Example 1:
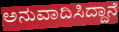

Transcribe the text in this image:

ಅನುವಾದಿಸಿದ್ದಾನೆ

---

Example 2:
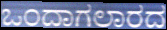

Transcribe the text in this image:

ಒಂದಾಗಲಾರದ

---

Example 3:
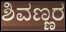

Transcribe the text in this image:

ಶಿವಣ್ಣರ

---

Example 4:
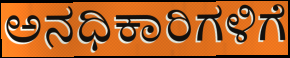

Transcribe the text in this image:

ಅನಧಿಕಾರಿಗಳಿಗೆ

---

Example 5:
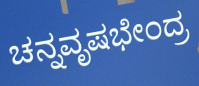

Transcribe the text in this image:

ಚನ್ನವೃಷಭೇಂದ್ರ